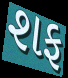
શફ